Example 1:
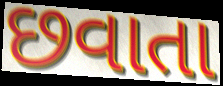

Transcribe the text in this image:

છવાતા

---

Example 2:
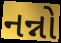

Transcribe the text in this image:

નન્નો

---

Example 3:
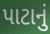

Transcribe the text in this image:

પાટાનું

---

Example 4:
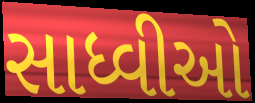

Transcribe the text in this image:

સાધ્વીઓ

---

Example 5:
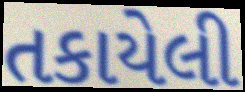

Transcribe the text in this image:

તકાયેલી